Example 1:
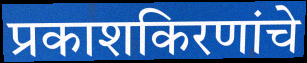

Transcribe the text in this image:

प्रकाशकिरणांचे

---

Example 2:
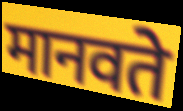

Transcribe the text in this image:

मानवते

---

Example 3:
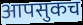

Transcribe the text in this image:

आपसुकच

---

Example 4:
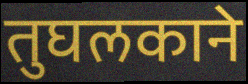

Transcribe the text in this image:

तुघलकाने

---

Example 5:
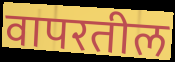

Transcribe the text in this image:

वापरतील